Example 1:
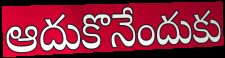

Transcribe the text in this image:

ఆదుకొనేందుకు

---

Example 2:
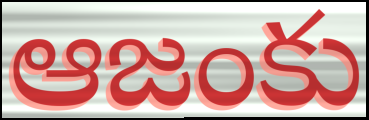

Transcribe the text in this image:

ఆజంకు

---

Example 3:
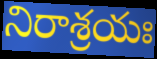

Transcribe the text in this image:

నిరాశ్రయః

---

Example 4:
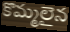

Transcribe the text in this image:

కొమ్మలైన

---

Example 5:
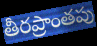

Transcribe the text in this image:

తీరప్రాంతపు